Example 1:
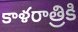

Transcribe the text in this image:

కాళరాత్రికి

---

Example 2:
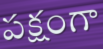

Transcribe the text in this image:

పక్షంగా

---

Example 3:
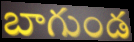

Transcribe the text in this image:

బాగుండ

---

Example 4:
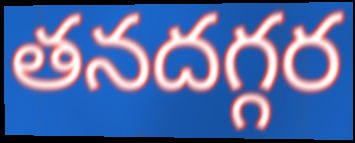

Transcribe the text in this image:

తనదగ్గర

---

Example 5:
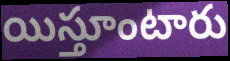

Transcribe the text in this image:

యిస్తూంటారు